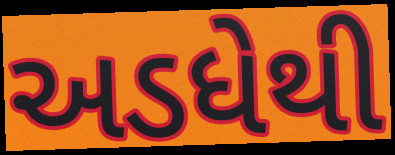
અડધેથી